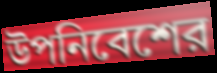
উপনিবেশের